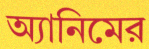
অ্যানিমের